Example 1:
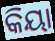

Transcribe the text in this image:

କିୟା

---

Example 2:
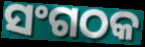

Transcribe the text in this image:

ସଂଗଠକ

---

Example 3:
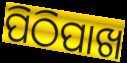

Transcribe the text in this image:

ପିଠିପାଖ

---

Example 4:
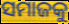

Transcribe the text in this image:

ସମାଜକୁ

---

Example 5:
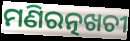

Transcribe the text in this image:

ମଣିରତ୍ନଖଚୀ